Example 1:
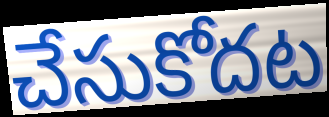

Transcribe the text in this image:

చేసుకోదట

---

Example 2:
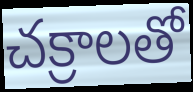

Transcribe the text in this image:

చక్రాలతో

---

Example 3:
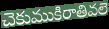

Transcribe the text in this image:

చెకుముకిరాతివలె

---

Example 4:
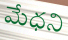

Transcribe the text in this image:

మేధని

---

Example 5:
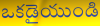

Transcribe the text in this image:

ఒకడైయుండి